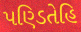
પણ્ડિતેહિ